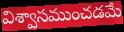
విశ్వాసముంచడమే